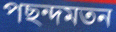
পছন্দমতন